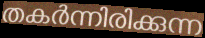
തകർന്നിരിക്കുന്ന